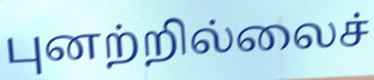
புனற்றில்லைச்